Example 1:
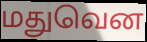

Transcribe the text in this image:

மதுவென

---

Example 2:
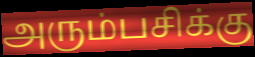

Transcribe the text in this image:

அரும்பசிக்கு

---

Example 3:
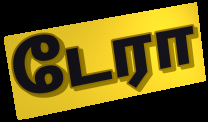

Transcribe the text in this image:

டேரா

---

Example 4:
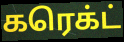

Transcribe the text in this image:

கரெக்ட்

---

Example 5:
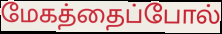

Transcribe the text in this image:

மேகத்தைப்போல்